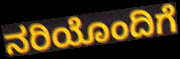
ನರಿಯೊಂದಿಗೆ